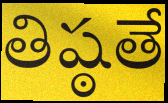
తిష్ఠతే